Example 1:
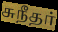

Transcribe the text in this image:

சுநீதர்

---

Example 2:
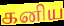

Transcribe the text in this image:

கனிய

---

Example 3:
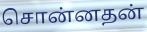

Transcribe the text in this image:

சொன்னதன்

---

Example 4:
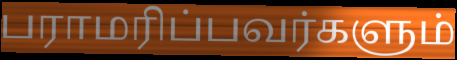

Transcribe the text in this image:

பராமரிப்பவர்களும்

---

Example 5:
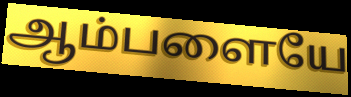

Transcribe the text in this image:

ஆம்பளையே